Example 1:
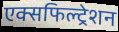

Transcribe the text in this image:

एक्सफिल्ट्रेशन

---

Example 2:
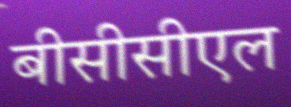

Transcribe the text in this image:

बीसीसीएल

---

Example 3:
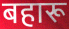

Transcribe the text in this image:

बहारू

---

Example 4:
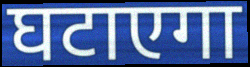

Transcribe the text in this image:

घटाएगा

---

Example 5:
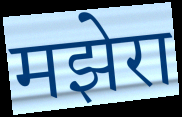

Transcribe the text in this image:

मझेरा